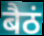
बैठं